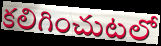
కలిగించుటలో